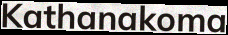
Kathanakoma